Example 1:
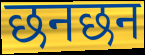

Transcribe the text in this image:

छनछन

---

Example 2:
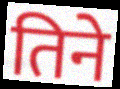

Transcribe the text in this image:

तिने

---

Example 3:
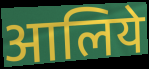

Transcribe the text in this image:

आलिये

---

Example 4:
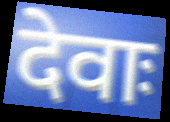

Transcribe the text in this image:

देवाः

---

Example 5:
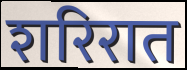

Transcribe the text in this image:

शरिरात